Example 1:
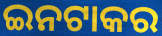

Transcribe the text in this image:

ଇନଟାକର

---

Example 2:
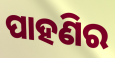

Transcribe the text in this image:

ପାହଣିର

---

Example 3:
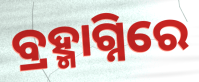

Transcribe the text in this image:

ବ୍ରହ୍ମାଗ୍ନିରେ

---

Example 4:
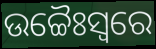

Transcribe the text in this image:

ଉଚ୍ଚୈଃସ୍ୱରେ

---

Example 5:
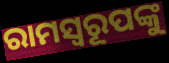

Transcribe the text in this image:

ରାମସ୍ୱରୂପଙ୍କୁ